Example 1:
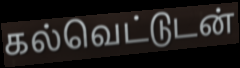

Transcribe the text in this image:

கல்வெட்டுடன்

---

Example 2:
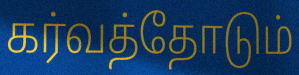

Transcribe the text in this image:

கர்வத்தோடும்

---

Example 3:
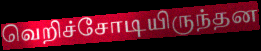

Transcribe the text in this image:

வெறிச்சோடியிருந்தன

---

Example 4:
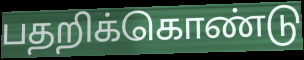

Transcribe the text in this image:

பதறிக்கொண்டு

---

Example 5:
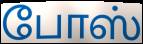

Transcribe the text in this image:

போஸ்